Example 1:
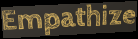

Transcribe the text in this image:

Empathize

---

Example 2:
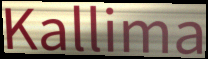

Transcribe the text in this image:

Kallima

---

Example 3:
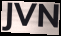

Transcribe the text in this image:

JVN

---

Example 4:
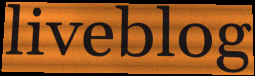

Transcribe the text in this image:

liveblog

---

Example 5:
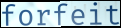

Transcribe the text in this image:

forfeit